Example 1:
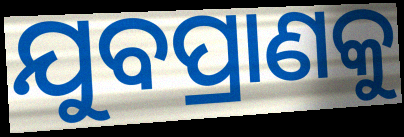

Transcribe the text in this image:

ଯୁବପ୍ରାଣକୁ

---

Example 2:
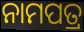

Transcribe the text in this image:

ନାମପତ୍ର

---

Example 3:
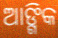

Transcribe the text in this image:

ଆଙ୍ଗିକ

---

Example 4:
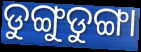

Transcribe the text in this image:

ଡୁଙ୍ଗୁଡୁଙ୍ଗା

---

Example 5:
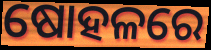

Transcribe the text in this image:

ଷୋହଳରେ